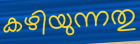
കഴിയുന്നതു